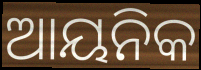
ଆୟନିକ